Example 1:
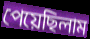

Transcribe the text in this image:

পেয়েছিলাম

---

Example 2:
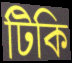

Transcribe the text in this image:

টিকি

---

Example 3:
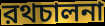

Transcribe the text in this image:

রথচালনা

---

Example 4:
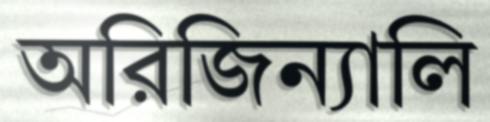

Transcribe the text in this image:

অরিজিন্যালি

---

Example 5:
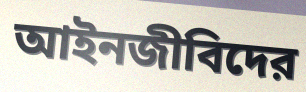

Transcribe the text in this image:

আইনজীবিদের